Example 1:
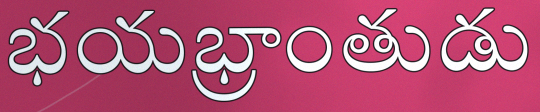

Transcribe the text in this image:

భయభ్రాంతుడు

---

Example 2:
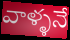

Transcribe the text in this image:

వాళ్ళనే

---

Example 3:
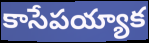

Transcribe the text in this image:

కాసేపయ్యాక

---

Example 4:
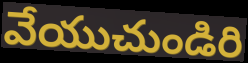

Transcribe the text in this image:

వేయుచుండిరి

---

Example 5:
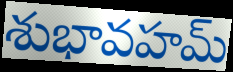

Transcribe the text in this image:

శుభావహమ్